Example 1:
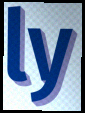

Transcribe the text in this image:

ly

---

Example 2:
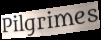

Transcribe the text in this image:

Pilgrimes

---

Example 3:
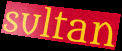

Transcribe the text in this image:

sultan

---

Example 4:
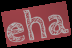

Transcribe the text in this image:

eha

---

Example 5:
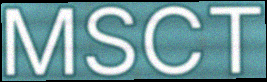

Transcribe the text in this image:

MSCT